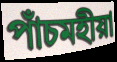
পাঁচমহীয়া